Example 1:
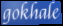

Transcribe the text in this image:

gokhale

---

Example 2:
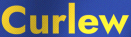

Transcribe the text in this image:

Curlew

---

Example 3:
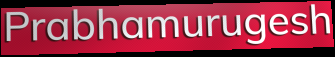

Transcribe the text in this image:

Prabhamurugesh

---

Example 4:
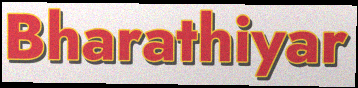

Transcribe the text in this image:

Bharathiyar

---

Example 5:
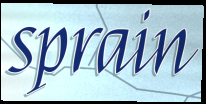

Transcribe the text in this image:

sprain